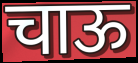
चाऊ